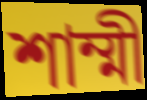
শাম্মী